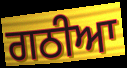
ਗਠੀਆ